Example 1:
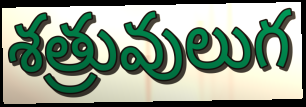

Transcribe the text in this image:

శత్రువులుగ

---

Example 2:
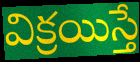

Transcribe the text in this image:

విక్రయిస్తే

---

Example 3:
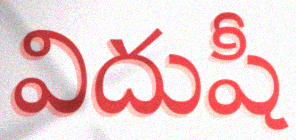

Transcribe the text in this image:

విదుషీ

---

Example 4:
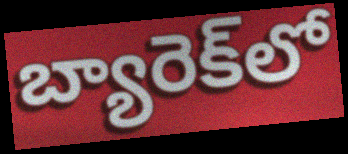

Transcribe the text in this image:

బ్యారెక్‌లో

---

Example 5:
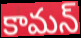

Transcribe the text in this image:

కామన్